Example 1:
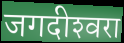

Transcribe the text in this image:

जगदीश्वरा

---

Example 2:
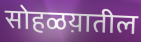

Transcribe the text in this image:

सोहळय़ातील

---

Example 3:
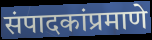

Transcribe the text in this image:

संपादकांप्रमाणे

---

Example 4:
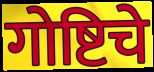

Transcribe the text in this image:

गोष्टिचे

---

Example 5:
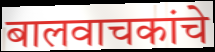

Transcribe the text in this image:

बालवाचकांचे